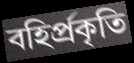
বহির্প্রকৃতি